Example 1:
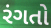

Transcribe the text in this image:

રંગતો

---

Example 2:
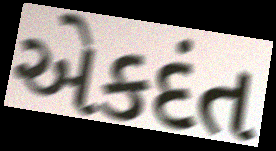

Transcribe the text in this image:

એકદંત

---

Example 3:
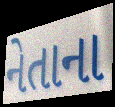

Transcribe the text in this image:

નેતાના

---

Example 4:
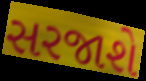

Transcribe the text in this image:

સરજાશે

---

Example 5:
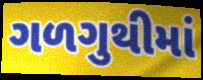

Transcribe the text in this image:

ગળગુથીમાં